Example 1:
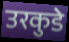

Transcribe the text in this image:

उरकुडे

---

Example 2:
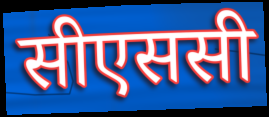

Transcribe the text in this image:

सीएससी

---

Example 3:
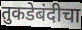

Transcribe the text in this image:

तुकडेबंदीचा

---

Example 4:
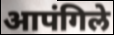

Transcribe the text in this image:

आपंगिले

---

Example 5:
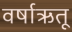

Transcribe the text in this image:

वर्षाऋतू